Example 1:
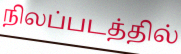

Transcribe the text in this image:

நிலப்படத்தில்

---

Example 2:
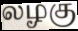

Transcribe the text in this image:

லழகு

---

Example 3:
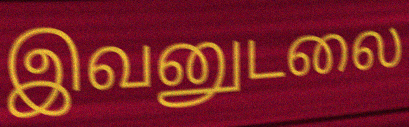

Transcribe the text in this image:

இவனுடலை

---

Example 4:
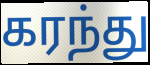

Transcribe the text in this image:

கரந்து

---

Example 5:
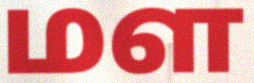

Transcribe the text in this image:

மள